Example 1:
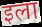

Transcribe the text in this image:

इला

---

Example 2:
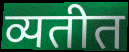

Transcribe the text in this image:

व्यतीत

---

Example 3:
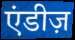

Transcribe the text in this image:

एंडीज़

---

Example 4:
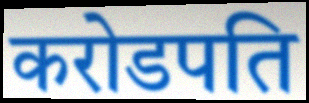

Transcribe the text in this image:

करोडपति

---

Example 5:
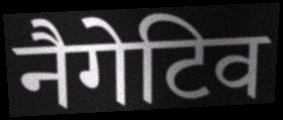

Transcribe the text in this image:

नैगेटिव